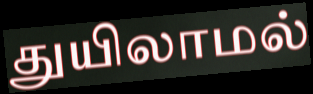
துயிலாமல்